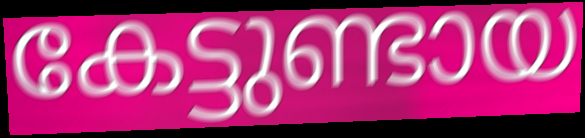
കേട്ടുണ്ടായ